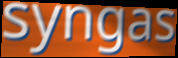
syngas